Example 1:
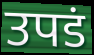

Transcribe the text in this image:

उपडं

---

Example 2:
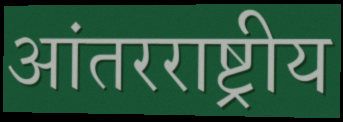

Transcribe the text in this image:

आंतरराष्ट्रीय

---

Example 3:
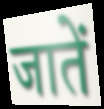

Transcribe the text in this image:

जातें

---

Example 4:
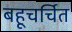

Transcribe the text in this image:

बहूचर्चित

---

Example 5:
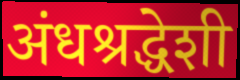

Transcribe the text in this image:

अंधश्रद्धेशी